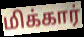
மிக்கார்